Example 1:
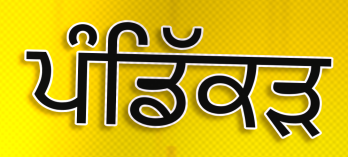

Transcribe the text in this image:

ਪੰਡਿੱਕੜ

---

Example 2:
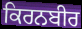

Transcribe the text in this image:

ਕਿਰਨਬੀਰ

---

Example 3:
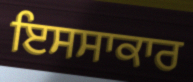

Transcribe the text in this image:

ਇਸਸਾਕਾਰ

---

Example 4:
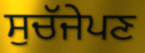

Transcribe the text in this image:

ਸੁਚੱਜੇਪਣ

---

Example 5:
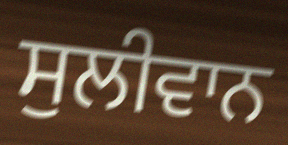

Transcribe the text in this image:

ਸੁਲੀਵਾਨ